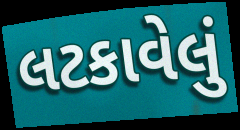
લટકાવેલું